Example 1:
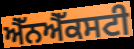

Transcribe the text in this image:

ਐੱਨਐੱਕਸਟੀ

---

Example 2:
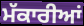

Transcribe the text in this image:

ਮੱਕਾਰੀਆਂ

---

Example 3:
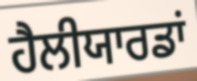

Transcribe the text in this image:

ਹੈਲੀਯਾਰਡਾਂ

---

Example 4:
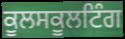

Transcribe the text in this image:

ਕੂਲਸਕੂਲਟਿੰਗ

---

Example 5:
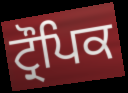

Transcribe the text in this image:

ਟ੍ਰੌਪਿਕ